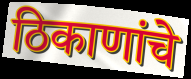
ठिकाणांचे